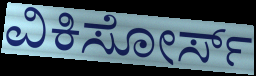
ವಿಕಿಸೋರ್ಸ್